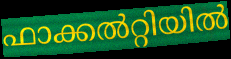
ഫാക്കൽറ്റിയിൽ